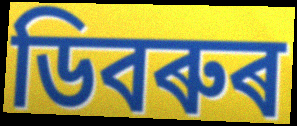
ডিবৰুৰ